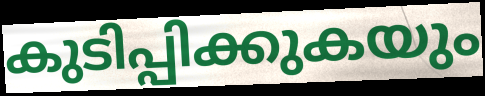
കുടിപ്പിക്കുകയും